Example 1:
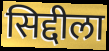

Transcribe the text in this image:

सिद्दीला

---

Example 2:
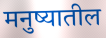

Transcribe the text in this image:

मनुष्यातील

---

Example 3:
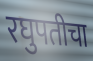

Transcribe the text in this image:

रघुपतीचा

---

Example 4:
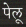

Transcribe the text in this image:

पेलू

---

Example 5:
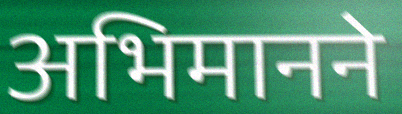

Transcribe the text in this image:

अभिमानने